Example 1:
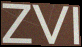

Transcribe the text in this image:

ZVI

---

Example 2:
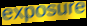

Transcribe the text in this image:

exposure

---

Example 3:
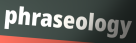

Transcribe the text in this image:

phraseology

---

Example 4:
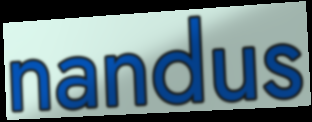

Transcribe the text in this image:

nandus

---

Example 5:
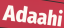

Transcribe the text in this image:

Adaahi